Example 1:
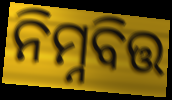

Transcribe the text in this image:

ନିମ୍ନବିତ୍ତ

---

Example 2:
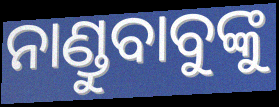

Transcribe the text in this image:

ନାଣ୍ଡୁବାବୁଙ୍କୁ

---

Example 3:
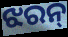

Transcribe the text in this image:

ଝରନ୍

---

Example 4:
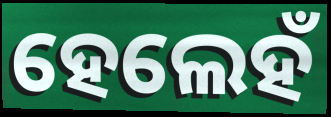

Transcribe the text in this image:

ହେଲେହଁ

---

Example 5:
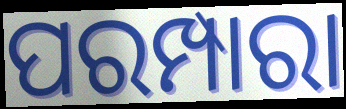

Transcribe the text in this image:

ପରମ୍ପାରା